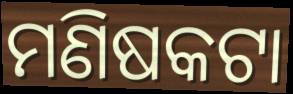
ମଣିଷକଟା